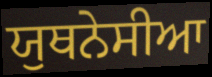
ਯੁਥਨੇਸੀਆ